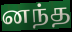
னந்த